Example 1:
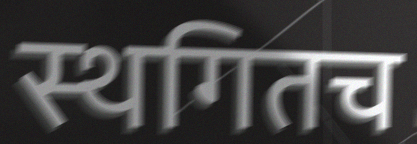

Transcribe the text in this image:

स्थगितच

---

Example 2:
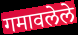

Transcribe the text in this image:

गमावलेले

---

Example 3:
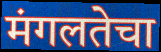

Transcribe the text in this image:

मंगलतेचा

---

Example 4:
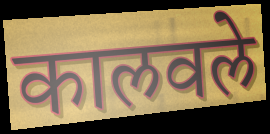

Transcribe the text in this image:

कालवले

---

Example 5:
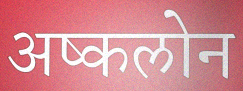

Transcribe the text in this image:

अष्कलोन